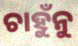
ଚାହୁଁନୁ